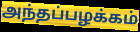
அந்தப்பழக்கம்